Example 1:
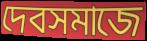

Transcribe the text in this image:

দেবসমাজে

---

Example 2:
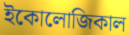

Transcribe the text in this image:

ইকোলোজিকাল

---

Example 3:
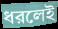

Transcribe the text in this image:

ধরলেই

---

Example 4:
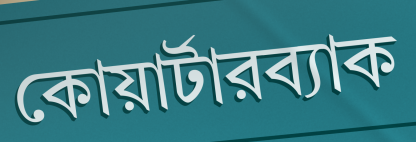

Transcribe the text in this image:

কোয়ার্টারব্যাক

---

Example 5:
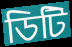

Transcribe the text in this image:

ডিটি